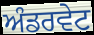
ਅੰਡਰਵੇਟ